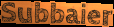
Subbaier